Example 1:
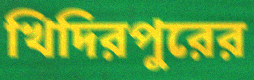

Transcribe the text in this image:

খিদিরপুরের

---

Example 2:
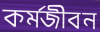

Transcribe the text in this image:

কর্মজীবন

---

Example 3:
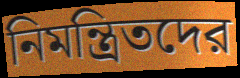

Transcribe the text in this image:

নিমন্ত্রিতদের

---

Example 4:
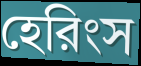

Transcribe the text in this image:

হেরিংস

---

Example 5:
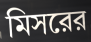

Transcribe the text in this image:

মিসরের